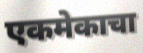
एकमेकाचा